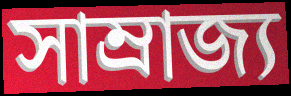
সাম্ৰাজ্য